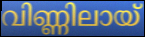
വിണ്ണിലായ്